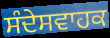
ਸੰਦੇਸਵਾਹਕ